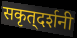
सकृत्‌दर्शनी